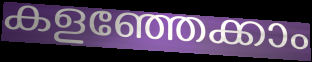
കളഞ്ഞേക്കാം